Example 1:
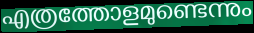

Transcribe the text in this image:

എത്രത്തോളമുണ്ടെന്നും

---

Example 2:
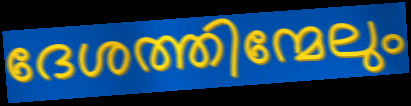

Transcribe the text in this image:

ദേശത്തിന്മേലും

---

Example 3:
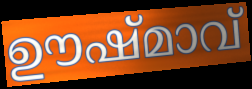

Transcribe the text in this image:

ഊഷ്മാവ്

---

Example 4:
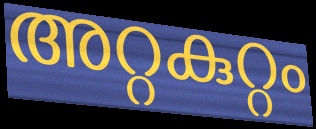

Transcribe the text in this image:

അറ്റകുറ്റം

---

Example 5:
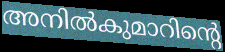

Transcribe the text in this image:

അനിൽകുമാറിന്റെ